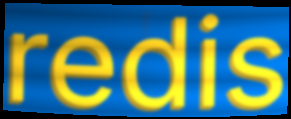
redis